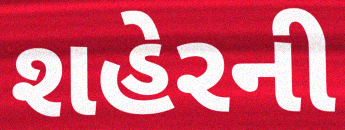
શહેરની